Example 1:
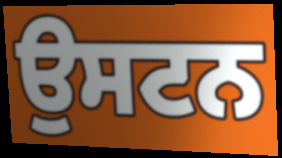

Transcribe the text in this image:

ਉਸਟਨ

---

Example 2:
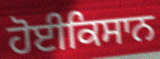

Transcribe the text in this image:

ਹੋਈਕਿਸਾਨ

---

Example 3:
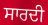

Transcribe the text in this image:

ਸਾਰਦੀ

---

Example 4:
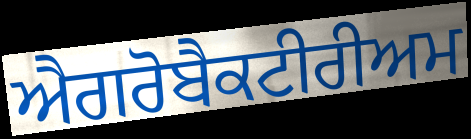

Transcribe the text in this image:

ਐਗਰੋਬੈਕਟੀਰੀਅਮ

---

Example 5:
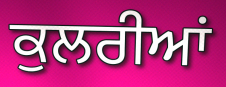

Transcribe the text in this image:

ਕੁਲਰੀਆਂ